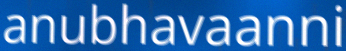
anubhavaanni